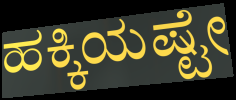
ಹಕ್ಕಿಯಷ್ಟೇ